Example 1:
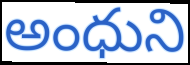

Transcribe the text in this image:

అంధుని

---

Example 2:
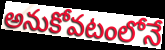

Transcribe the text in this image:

అనుకోవటంలోనే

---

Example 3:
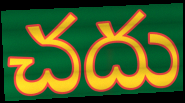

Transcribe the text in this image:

చదు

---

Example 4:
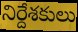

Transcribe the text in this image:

నిర్దేశకులు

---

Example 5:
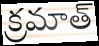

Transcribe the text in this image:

క్రమాత్